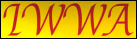
IWWA